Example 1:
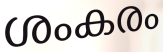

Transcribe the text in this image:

ശംകരം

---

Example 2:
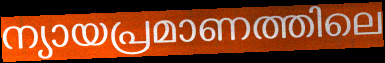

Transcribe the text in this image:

ന്യായപ്രമാണത്തിലെ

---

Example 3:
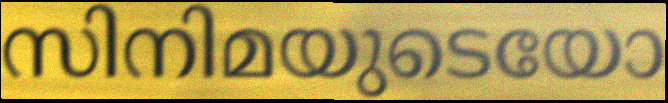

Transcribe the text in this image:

സിനിമയുടെയോ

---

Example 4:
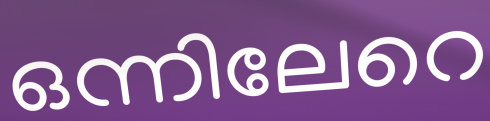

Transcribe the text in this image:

ഒന്നിലേറെ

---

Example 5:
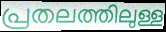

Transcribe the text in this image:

പ്രതലത്തിലുള്ള